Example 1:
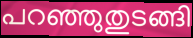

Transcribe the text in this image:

പറഞ്ഞുതുടങ്ങി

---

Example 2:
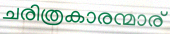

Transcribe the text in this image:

ചരിത്രകാരന്മാര്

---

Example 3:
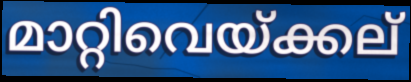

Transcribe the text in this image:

മാറ്റിവെയ്ക്കല്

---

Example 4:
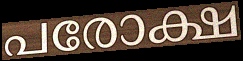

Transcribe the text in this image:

പരോക്ഷ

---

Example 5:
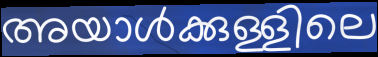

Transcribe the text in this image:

അയാൾക്കുള്ളിലെ